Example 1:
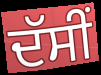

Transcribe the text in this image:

ਦੱਸੀਂ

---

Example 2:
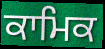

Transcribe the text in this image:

ਕਾਮਿਕ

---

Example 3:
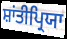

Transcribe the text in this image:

ਸ਼ਾਂਤੀਪ੍ਰਿਯਾ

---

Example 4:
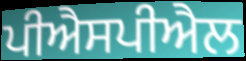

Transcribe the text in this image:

ਪੀਐਸਪੀਐਲ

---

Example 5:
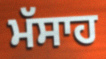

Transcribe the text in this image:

ਮੱਸਾਹ